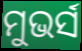
ମୁଭର୍ସ